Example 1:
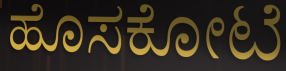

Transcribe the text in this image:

ಹೊಸಕೋಟೆ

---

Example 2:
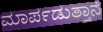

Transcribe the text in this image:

ಮಾರ್ಪಡುತ್ತಾನೆ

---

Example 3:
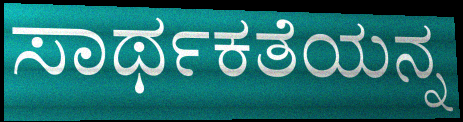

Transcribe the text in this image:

ಸಾರ್ಥಕತೆಯನ್ನ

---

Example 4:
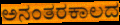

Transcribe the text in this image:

ಅನಂತರಕಾಲದ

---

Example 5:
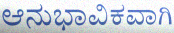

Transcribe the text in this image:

ಆನುಭಾವಿಕವಾಗಿ